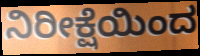
ನಿರೀಕ್ಷೆಯಿಂದ